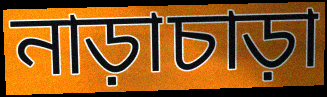
নাড়াচাড়া